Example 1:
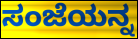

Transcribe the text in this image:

ಸಂಜೆಯನ್ನ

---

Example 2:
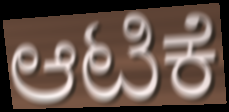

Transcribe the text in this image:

ಆಟಿಕೆ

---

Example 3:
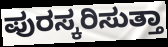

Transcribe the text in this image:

ಪುರಸ್ಕರಿಸುತ್ತಾ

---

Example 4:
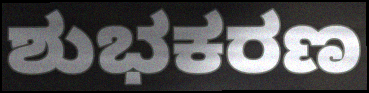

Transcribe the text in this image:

ಶುಭಕರಣ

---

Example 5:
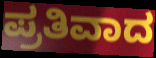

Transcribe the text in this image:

ಪ್ರತಿವಾದ